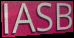
IASB